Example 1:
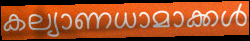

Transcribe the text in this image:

കല്യാണധാമാക്കൾ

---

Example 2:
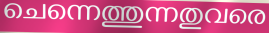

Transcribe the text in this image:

ചെന്നെത്തുന്നതുവരെ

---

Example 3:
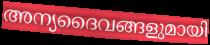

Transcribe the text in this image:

അന്യദൈവങ്ങളുമായി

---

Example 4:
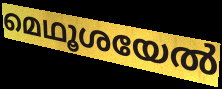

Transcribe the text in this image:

മെഥൂശയേൽ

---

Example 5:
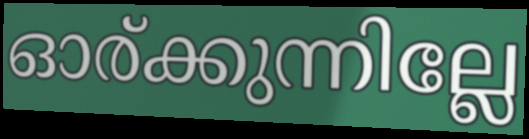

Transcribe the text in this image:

ഓര്ക്കുന്നില്ലേ